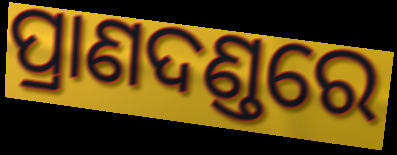
ପ୍ରାଣଦଣ୍ଡରେ